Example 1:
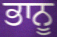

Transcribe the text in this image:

ਭਾਨੂ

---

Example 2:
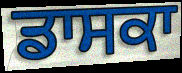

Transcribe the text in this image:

ਡਾਸਕਾ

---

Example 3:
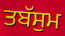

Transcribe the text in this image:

ਤਬੱਸੁਮ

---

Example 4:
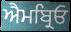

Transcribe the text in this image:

ਐਮਬ੍ਰਿਓ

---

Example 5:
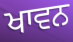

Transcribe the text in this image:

ਖਾਵਨ